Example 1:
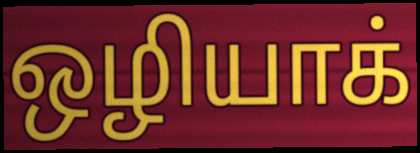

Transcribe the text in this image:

ஒழியாக்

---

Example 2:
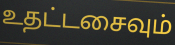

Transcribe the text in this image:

உதட்டசைவும்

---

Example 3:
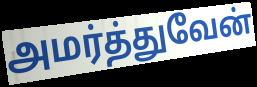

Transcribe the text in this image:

அமர்த்துவேன்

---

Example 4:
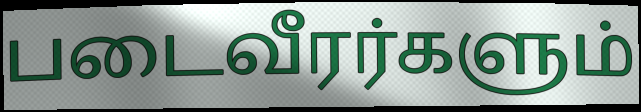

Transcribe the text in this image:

படைவீரர்களும்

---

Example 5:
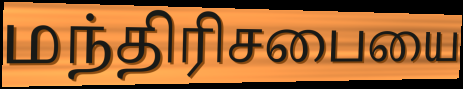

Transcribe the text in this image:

மந்திரிசபையை